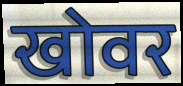
खोवर